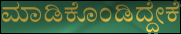
ಮಾಡಿಕೊಂಡಿದ್ದೇಕೆ